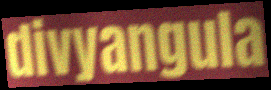
divyangula